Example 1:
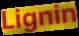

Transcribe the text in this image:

Lignin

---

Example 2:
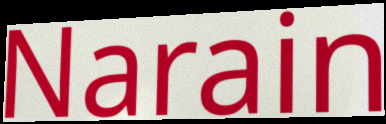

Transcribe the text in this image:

Narain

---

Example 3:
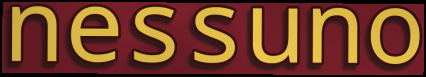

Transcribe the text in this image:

nessuno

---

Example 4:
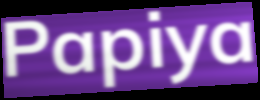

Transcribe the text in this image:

Papiya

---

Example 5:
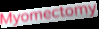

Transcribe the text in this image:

Myomectomy